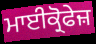
ਮਾਈਕ੍ਰੋਫੇਜ਼